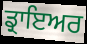
ਡ੍ਰਾਇਅਰ